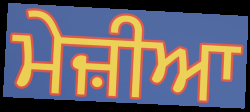
ਮੇਜ਼ੀਆ